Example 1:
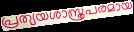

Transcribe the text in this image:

പ്രത്യയശാസ്ത്രപരമായ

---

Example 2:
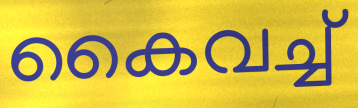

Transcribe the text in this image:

കൈവച്ച്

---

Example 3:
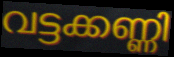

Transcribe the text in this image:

വട്ടക്കണ്ണി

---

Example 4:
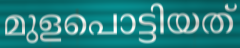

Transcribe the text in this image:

മുളപൊട്ടിയത്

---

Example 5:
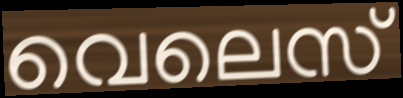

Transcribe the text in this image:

വെലെസ്